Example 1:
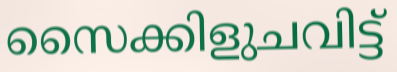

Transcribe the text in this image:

സൈക്കിളുചവിട്ട്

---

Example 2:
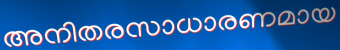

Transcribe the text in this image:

അനിതരസാധാരണമായ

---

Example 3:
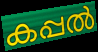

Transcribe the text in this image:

കപ്പൽ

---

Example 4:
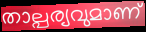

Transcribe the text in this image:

താല്പര്യവുമാണ്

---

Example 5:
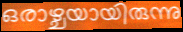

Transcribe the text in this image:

ഒരാഴ്ചയായിരുന്നു